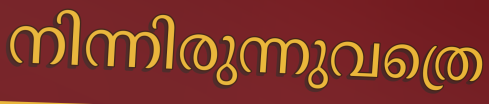
നിന്നിരുന്നുവത്രെ